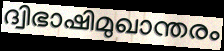
ദ്വിഭാഷിമുഖാന്തരം